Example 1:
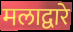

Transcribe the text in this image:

मलाद्वारे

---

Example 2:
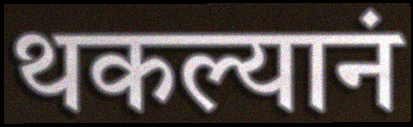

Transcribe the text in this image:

थकल्यानं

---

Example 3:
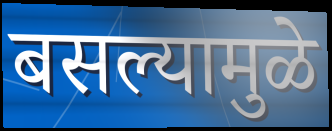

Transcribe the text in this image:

बसल्यामुळे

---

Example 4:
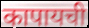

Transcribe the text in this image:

कापायची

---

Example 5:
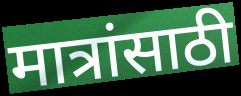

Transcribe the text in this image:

मात्रांसाठी